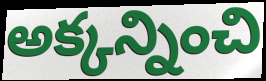
అక్కన్నించి